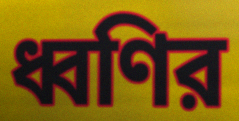
ধ্বণির